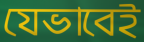
যেভাবেই